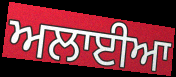
ਅਲਾਈਆ